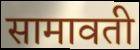
सामावती